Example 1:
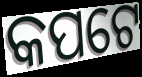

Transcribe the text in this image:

କପଟେ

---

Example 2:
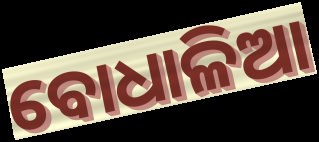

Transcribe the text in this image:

ବୋଧାଳିଆ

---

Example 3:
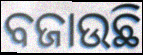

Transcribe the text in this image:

ବଜାଉଛି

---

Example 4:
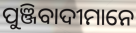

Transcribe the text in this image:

ପୁଞ୍ଜିବାଦୀମାନେ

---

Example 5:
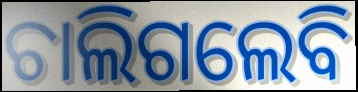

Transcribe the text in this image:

ଚାଲିଗଲେବି